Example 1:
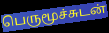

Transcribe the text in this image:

பெருமூச்சுடன்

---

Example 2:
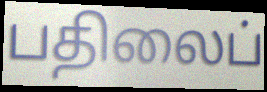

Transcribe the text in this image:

பதிலைப்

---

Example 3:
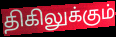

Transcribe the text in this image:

திகிலுக்கும்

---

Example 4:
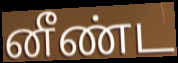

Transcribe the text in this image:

னீண்ட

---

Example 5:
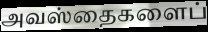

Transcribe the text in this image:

அவஸ்தைகளைப்